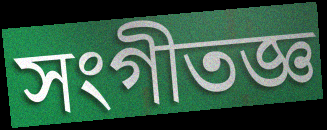
সংগীতজ্ঞ